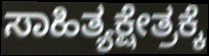
ಸಾಹಿತ್ಯಕ್ಷೇತ್ರಕ್ಕೆ